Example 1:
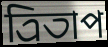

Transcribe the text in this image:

ত্রিতাপ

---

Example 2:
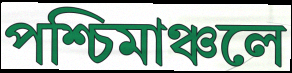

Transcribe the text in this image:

পশ্চিমাঞ্চলে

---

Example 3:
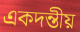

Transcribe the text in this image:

একদন্তীয়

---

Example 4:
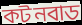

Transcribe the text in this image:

কটনবাড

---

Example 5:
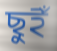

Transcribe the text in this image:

ছুইঁ